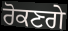
ਰੋਕਣਗੇ